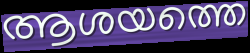
ആശയത്തെ